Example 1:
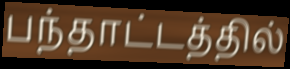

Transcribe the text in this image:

பந்தாட்டத்தில்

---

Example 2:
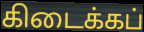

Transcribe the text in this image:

கிடைக்கப்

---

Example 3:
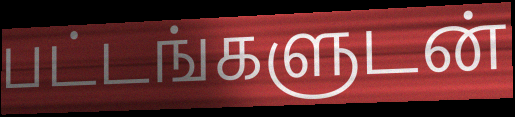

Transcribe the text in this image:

பட்டங்களுடன்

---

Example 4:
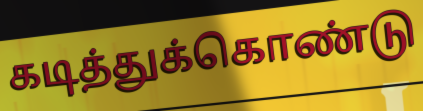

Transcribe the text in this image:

கடித்துக்கொண்டு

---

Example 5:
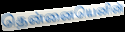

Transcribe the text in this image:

தென்னையெனின்